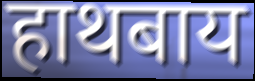
हाथबाय